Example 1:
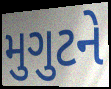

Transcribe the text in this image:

મુગુટને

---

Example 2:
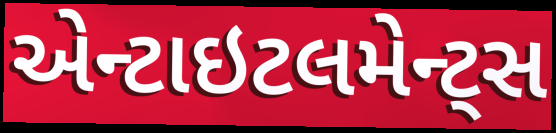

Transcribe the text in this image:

એન્ટાઇટલમેન્ટ્સ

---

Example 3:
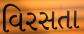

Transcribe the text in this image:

વિરસતા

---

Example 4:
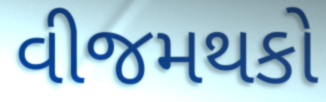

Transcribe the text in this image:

વીજમથકો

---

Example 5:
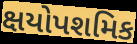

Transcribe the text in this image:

ક્ષયોપશમિક